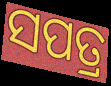
ସପତ୍ର